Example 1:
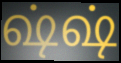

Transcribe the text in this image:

ஷ்ஷ்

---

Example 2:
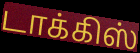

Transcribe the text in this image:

டாக்கிஸ்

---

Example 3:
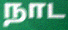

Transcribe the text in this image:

நாட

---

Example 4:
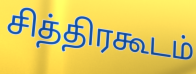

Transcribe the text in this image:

சித்திரகூடம்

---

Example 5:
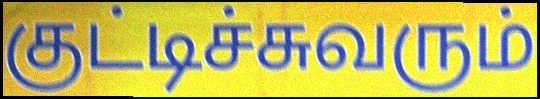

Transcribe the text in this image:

குட்டிச்சுவரும்